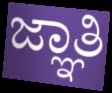
ಜ್ಞಾತಿ